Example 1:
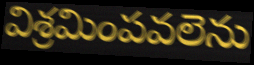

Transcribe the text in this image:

విశ్రమింపవలెను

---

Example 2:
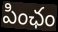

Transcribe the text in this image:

పింఛం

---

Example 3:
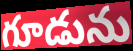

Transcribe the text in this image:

గూడును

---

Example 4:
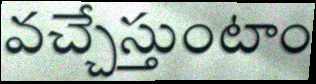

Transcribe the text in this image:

వచ్చేస్తుంటాం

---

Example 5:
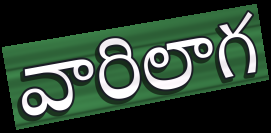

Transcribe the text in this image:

వారిలాగ